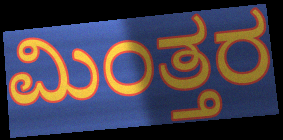
ಮಿಂತ್ತರ